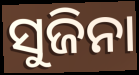
ସୁଜିନା